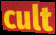
cult